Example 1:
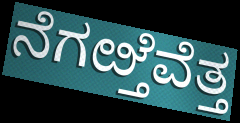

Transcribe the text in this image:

ನೆಗೞ್ತೆವೆತ್ತ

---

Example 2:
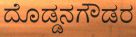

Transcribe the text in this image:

ದೊಡ್ಡನಗೌಡರ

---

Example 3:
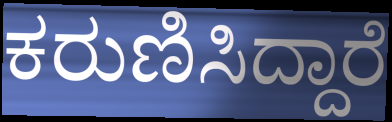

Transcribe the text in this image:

ಕರುಣಿಸಿದ್ದಾರೆ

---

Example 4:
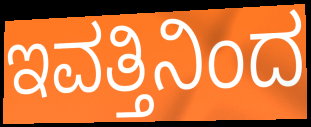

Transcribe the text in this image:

ಇವತ್ತಿನಿಂದ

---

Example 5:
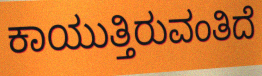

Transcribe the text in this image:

ಕಾಯುತ್ತಿರುವಂತಿದೆ